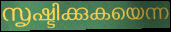
സൃഷ്ടിക്കുകയെന്ന